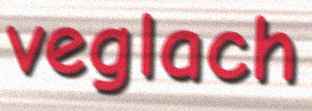
veglach